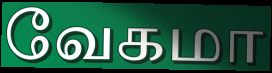
வேகமா